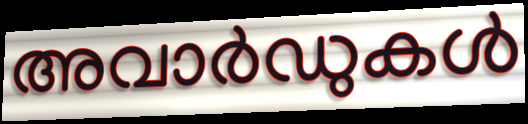
അവാർഡുകൾ